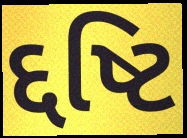
દ્દષ્ટિ